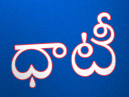
ధాటీ